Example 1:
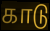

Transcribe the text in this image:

காடு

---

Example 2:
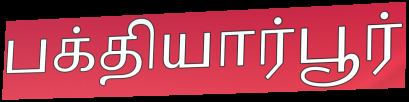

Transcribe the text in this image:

பக்தியார்பூர்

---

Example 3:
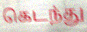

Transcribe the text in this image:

கெடந்து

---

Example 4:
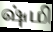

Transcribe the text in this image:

ஷ்மி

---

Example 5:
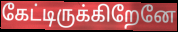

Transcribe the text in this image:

கேட்டிருக்கிறேனே